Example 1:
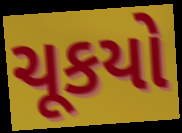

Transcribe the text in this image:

ચૂકયો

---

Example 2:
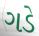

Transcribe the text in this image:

ગડે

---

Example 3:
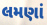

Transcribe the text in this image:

લમણાં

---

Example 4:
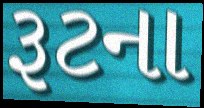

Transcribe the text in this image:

રૂટના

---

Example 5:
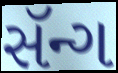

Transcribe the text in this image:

સૅન્ગ